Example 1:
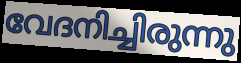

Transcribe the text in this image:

വേദനിച്ചിരുന്നു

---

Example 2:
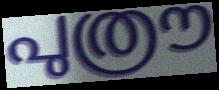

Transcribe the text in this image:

പുത്രൗ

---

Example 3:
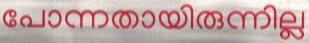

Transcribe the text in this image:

പോന്നതായിരുന്നില്ല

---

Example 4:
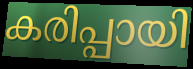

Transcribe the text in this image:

കരിപ്പായി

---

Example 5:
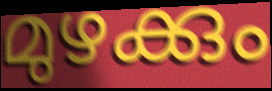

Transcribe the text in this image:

മുഴക്കും